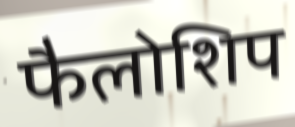
फैलोशिप